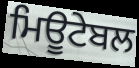
ਮਿਊਟੇਬਲ